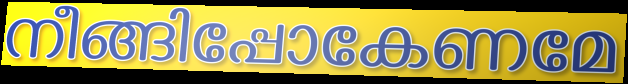
നീങ്ങിപ്പോകേണമേ